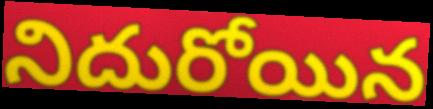
నిదురోయిన